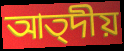
আত্দীয়